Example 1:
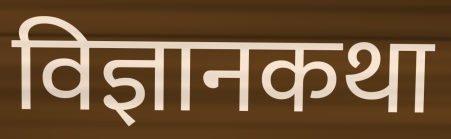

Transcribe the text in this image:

विज्ञानकथा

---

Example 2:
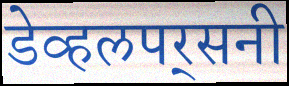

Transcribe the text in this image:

डेव्हलपर्सनी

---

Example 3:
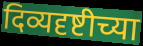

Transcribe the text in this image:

दिव्यदृष्टीच्या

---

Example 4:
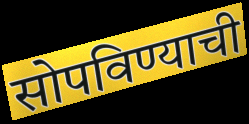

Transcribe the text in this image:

सोपविण्याची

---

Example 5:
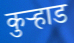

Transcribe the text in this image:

कुऱ्हाड